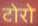
टोरो